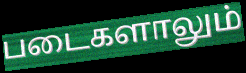
படைகளாலும்